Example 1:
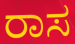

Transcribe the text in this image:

ರಾಸ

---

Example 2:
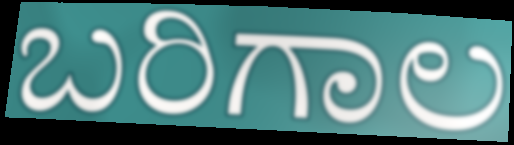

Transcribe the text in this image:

ಬರಿಗಾಲ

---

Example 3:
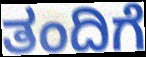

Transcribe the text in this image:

ತಂದಿಗೆ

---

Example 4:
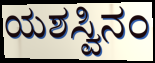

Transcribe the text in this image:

ಯಶಸ್ವಿನಂ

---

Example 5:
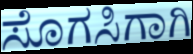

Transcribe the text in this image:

ಸೊಗಸಿಗಾಗಿ